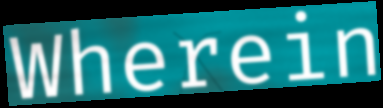
Wherein